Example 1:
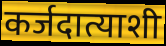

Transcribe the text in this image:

कर्जदात्याशी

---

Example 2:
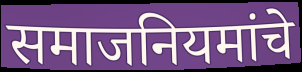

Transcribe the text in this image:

समाजनियमांचे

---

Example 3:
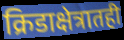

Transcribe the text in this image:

क्रिडाक्षेत्रातही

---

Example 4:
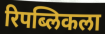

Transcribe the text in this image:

रिपब्लिकला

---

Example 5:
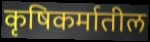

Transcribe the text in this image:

कृषिकर्मातील